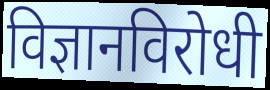
विज्ञानविरोधी